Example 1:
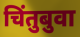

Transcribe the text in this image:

चिंतुबुवा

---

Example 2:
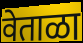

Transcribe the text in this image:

वेताळा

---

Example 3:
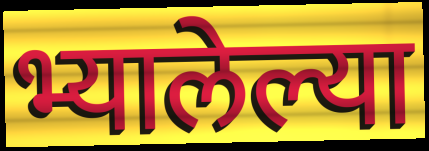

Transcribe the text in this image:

भ्यालेल्या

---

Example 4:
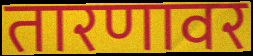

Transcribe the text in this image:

तारणावर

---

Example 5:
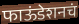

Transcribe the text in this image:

फाऊंडेशनचं